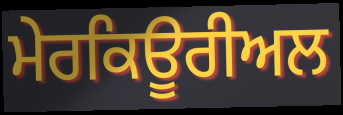
ਮੇਰਕਿਊਰੀਅਲ